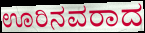
ಊರಿನವರಾದ